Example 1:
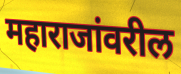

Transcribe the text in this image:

महाराजांवरील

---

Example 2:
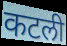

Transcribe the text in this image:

कटली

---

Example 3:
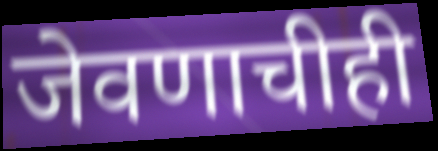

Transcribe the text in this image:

जेवणाचीही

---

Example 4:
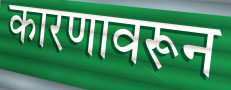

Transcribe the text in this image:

कारणावरून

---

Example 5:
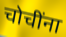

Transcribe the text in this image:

चोचींना